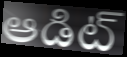
ఆడిట్